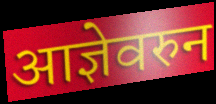
आज्ञेवरुन